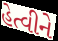
હેત્વીને